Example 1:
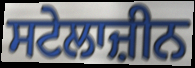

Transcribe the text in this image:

ਸਟੇਲਾਜ਼ੀਨ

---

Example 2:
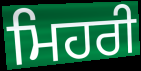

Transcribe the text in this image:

ਮਿਹਰੀ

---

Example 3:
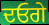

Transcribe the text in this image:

ਦਓਗੇ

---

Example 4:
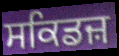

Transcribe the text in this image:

ਸਕਿਡਜ਼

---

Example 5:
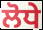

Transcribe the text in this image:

ਲੋਧੇ